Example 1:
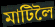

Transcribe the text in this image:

মাটিলৈ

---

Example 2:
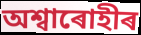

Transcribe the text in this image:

অশ্বাৰোহীৰ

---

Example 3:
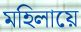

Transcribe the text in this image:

মহিলায়ে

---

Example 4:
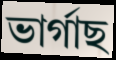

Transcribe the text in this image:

ভাৰ্গাছ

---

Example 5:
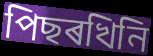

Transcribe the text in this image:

পিছৰখিনি